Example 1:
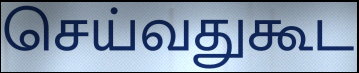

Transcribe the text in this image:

செய்வதுகூட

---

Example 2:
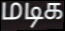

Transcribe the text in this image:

மடிக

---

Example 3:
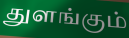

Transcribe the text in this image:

துளங்கும்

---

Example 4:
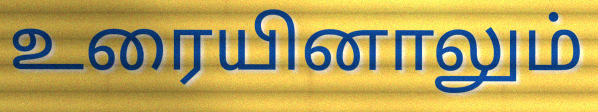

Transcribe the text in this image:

உரையினாலும்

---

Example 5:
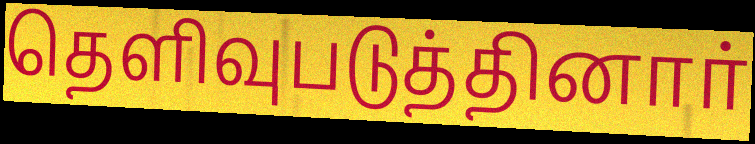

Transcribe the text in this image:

தெளிவுபடுத்தினார்